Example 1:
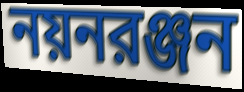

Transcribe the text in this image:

নয়নরঞ্জন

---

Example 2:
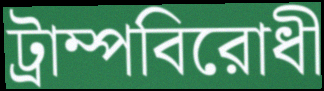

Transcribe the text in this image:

ট্রাম্পবিরোধী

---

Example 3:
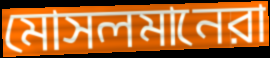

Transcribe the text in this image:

মোসলমানেরা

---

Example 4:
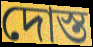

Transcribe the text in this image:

দোস্ত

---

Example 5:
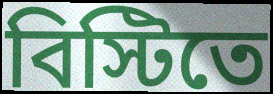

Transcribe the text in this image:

বিস্টিতে